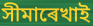
সীমাৰেখাই